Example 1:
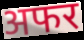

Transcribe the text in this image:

अफर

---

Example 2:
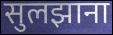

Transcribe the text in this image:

सुलझाना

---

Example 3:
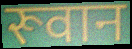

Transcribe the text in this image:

रूवान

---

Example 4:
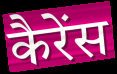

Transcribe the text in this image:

कैरेंस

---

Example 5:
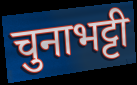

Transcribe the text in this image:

चुनाभट्टी